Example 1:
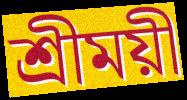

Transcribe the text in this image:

শ্রীময়ী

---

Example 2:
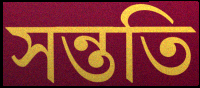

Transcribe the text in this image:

সন্ততি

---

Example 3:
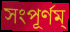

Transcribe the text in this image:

সংপূর্ণম্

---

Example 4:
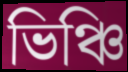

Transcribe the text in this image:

ভিঞ্চি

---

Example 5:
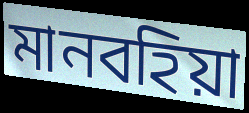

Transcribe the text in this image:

মানবহিয়া